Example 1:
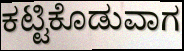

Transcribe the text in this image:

ಕಟ್ಟಿಕೊಡುವಾಗ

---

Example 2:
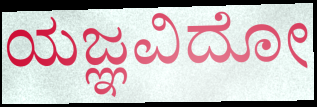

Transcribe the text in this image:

ಯಜ್ಞವಿದೋ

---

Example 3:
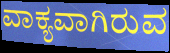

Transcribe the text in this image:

ವಾಕ್ಯವಾಗಿರುವ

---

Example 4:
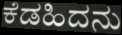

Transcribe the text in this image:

ಕೆಡಹಿದನು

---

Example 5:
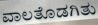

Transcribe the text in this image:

ವಾಲತೊಡಗಿತು